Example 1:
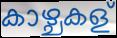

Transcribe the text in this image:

കാഴ്ചകള്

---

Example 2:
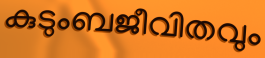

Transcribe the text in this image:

കുടുംബജീവിതവും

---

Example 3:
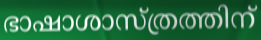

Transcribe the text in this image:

ഭാഷാശാസ്ത്രത്തിന്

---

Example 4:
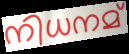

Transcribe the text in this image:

നിധനമ്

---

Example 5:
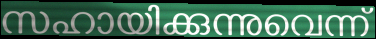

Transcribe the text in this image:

സഹായിക്കുന്നുവെന്ന്